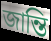
জান্তি